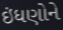
ઇંધણોને